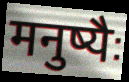
मनुष्यैः